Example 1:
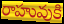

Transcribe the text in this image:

రాహువుకి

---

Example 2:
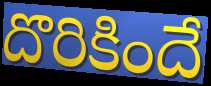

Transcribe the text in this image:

దొరికిందే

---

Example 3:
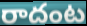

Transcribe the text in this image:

రాదంట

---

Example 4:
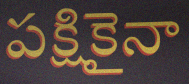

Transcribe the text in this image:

పక్షికైనా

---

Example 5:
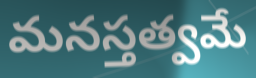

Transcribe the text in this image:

మనస్తత్వమే